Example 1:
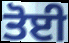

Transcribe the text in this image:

ਤੋਈ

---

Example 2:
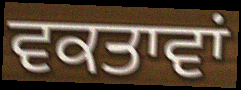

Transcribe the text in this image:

ਵਕਤਾਵਾਂ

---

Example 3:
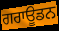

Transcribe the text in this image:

ਗਰਾਊਡਨ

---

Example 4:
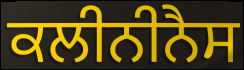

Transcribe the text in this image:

ਕਲੀਨੀਨੈਸ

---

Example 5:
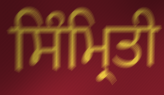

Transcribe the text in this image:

ਸਿੰਮ੍ਰਿਤੀ